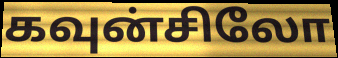
கவுன்சிலோ